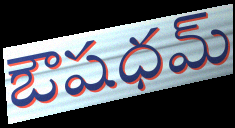
ఔషధమ్